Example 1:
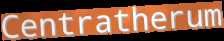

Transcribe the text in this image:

Centratherum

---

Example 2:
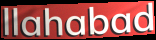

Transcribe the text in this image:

llahabad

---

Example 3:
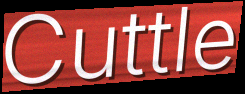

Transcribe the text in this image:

Cuttle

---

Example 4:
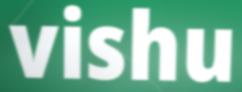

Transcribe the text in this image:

vishu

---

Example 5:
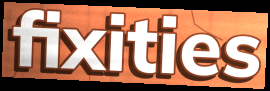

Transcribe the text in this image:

fixities